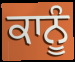
ਕਾਨੂੰ